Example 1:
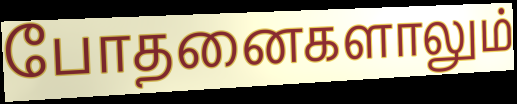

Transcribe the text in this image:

போதனைகளாலும்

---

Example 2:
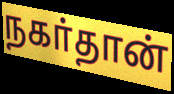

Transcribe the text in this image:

நகர்தான்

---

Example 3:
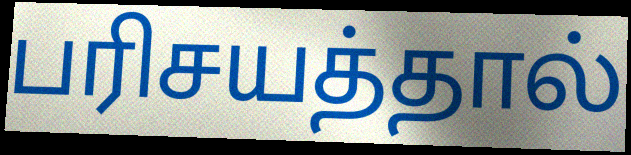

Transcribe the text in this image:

பரிசயத்தால்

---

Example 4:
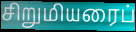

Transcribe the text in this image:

சிறுமியரைப்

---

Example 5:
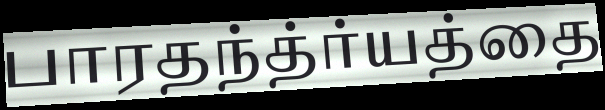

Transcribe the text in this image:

பாரதந்த்ர்யத்தை